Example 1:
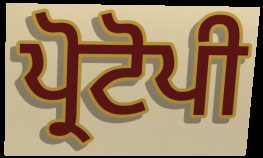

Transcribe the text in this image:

ਪ੍ਰੋਟੋਪੀ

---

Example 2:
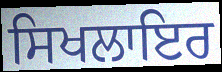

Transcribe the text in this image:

ਸਿਖਲਾਇਰ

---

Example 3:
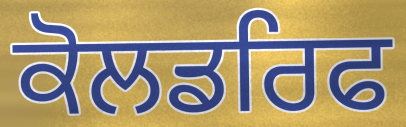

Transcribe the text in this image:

ਕੋਲਡਰਿਫ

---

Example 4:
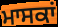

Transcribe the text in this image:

ਮਾਸਕਾਂ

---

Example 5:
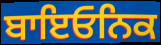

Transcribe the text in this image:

ਬਾਇਓਨਿਕ